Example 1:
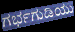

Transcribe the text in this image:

ಗರ್ಭಗುಡಿಯು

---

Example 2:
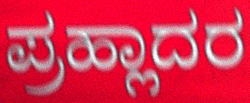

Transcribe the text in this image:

ಪ್ರಹ್ಲಾದರ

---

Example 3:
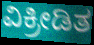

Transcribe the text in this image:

ವಿಕ್ರೀಡಿತ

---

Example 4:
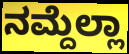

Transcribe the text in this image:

ನಮ್ದೆಲ್ಲಾ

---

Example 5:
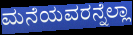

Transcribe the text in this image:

ಮನೆಯವರನ್ನೆಲ್ಲಾ